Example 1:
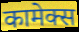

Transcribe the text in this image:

कामेक्स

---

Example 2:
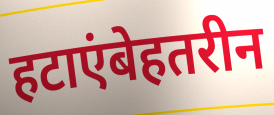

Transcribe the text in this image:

हटाएंबेहतरीन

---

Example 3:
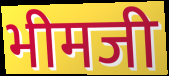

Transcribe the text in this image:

भीमजी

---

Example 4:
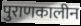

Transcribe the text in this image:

पुराणकालीन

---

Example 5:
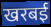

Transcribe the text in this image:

खरबई